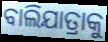
ବାଲିଯାତ୍ରାକୁ